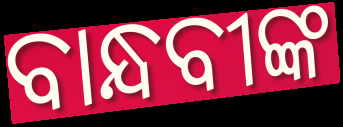
ବାନ୍ଧବୀଙ୍କ